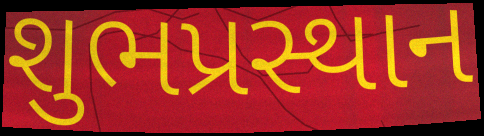
શુભપ્રસ્થાન